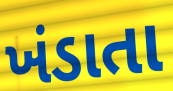
ખંડાતા